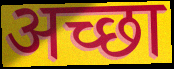
अच्‍छा